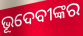
ଭୂଦେବୀଙ୍କର